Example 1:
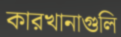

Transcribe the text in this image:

কারখানাগুলি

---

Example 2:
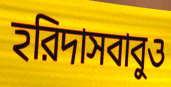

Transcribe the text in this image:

হরিদাসবাবুও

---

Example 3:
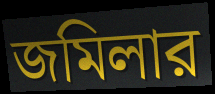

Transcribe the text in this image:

জমিলার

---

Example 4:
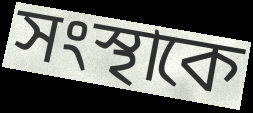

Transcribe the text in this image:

সংস্থাকে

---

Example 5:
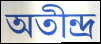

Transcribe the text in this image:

অতীন্দ্র